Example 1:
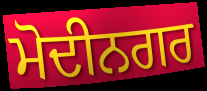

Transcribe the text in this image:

ਮੋਦੀਨਗਰ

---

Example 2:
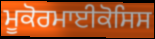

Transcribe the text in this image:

ਮੂਕੋਰਮਾਈਕੋਸਿਸ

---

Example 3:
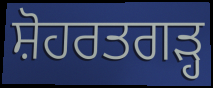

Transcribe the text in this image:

ਸ਼ੋਹਰਤਗੜ੍ਹ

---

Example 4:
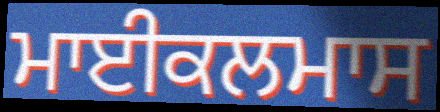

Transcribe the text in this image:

ਮਾਈਕਲਮਾਸ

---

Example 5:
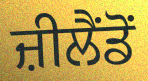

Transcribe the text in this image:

ਜ਼ੀਲੈਂਡੋਂ